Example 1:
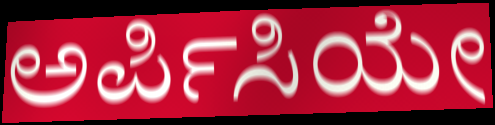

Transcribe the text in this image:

ಅರ್ಪಿಸಿಯೇ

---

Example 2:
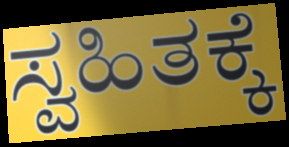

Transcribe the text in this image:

ಸ್ವಹಿತಕ್ಕೆ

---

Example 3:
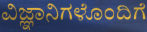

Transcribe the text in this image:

ವಿಜ್ಞಾನಿಗಳೊಂದಿಗೆ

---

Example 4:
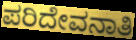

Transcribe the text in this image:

ಪರಿದೇವನಾತಿ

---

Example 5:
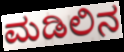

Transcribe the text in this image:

ಮಡಿಲಿನ